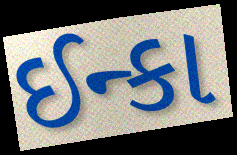
ઈન્કા